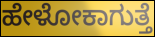
ಹೇಳೋಕಾಗುತ್ತೆ